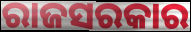
ରାଜସରକାର